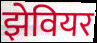
झेवियर